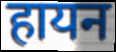
हायन